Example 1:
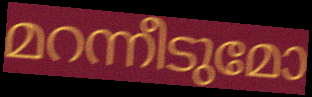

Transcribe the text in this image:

മറന്നീടുമോ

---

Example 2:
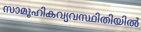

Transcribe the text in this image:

സാമൂഹികവ്യവസ്ഥിതിയിൽ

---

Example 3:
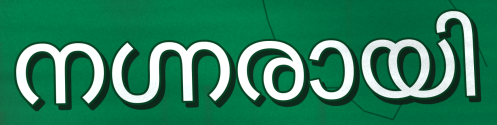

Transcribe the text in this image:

നഗ്നരായി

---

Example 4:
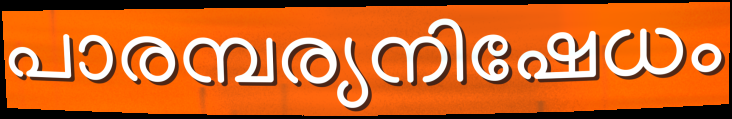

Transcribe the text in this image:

പാരമ്പര്യനിഷേധം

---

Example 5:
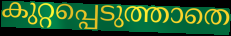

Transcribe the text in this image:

കുറ്റപ്പെടുത്താതെ